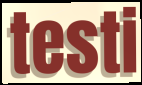
testi